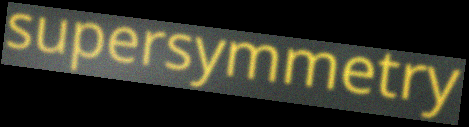
supersymmetry